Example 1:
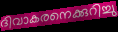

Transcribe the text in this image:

ദിവാകരനെക്കുറിച്ചു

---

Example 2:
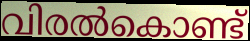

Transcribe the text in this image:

വിരൽകൊണ്ട്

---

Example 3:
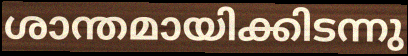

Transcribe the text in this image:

ശാന്തമായിക്കിടന്നു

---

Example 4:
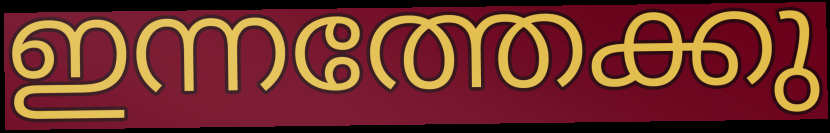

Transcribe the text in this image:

ഇന്നത്തേക്കു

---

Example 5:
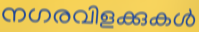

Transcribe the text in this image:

നഗരവിളക്കുകൾ